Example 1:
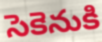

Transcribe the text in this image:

సెకెనుకి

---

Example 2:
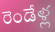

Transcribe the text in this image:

రెండేళ్ల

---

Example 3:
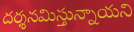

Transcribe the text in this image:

దర్శనమిస్తున్నాయని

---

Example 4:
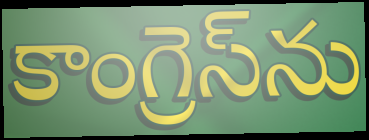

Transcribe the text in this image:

కాంగ్రెస్‌ను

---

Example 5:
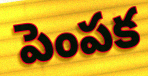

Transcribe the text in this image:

పెంపక